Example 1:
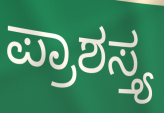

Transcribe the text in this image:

ಪ್ರಾಶಸ್ತ್ಯ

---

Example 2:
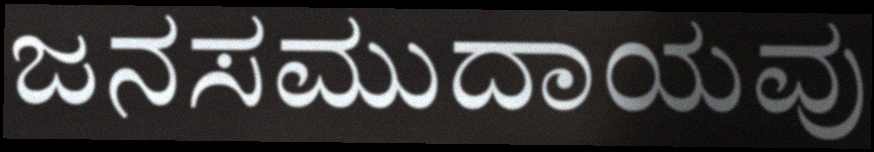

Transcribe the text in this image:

ಜನಸಮುದಾಯವು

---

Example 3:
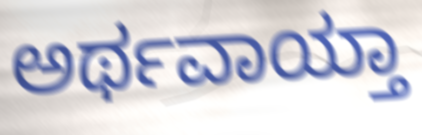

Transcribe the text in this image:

ಅರ್ಥವಾಯ್ತಾ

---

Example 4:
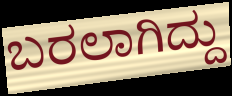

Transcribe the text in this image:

ಬರಲಾಗಿದ್ದು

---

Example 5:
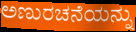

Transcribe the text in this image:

ಅಣುರಚನೆಯನ್ನು